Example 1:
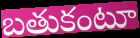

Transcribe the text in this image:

బతుకంటూ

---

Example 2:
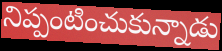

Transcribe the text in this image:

నిప్పంటించుకున్నాడు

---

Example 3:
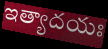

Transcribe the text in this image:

ఇత్యాదయః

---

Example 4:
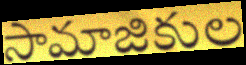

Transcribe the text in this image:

సామాజికుల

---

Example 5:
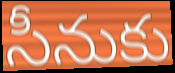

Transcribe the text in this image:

సీనుకు